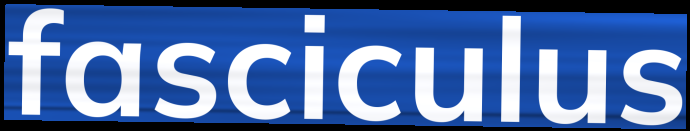
fasciculus